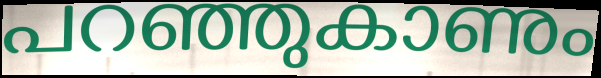
പറഞ്ഞുകാണും